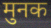
मुनक